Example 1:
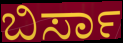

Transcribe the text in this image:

ಬಿರ್ಸಾ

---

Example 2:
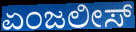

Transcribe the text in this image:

ಏಂಜಲೀಸ್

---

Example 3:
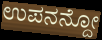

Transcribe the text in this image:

ಉಪನನ್ದೋ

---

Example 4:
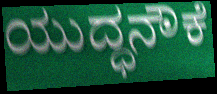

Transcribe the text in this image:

ಯುದ್ಧನೌಕೆ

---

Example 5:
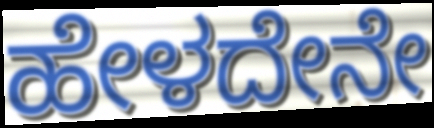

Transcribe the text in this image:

ಹೇಳದೇನೇ